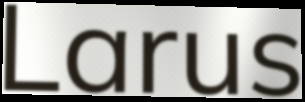
Larus